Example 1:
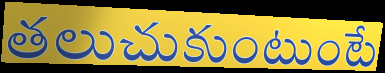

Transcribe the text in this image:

తలుచుకుంటుంటే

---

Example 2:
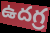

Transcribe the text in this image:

ఉదగ్ర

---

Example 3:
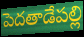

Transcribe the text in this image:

పెదతాడేపల్లి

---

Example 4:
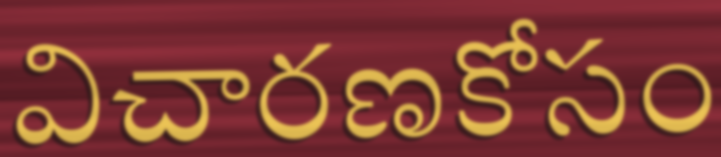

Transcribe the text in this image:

విచారణకోసం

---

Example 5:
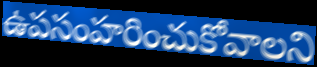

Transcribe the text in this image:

ఉపసంహరించుకోవాలని